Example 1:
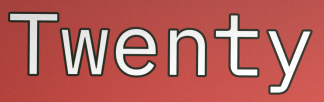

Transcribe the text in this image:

Twenty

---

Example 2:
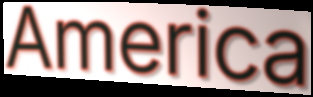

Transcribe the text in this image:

America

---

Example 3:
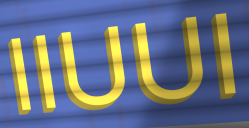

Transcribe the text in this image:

IIUUI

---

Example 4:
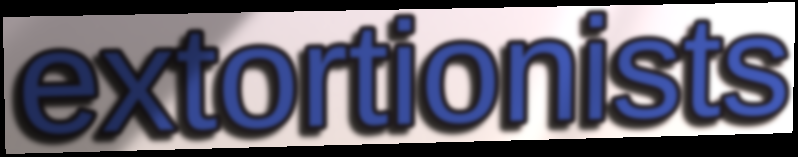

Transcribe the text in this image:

extortionists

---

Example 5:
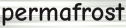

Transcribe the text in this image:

permafrost